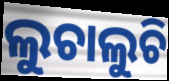
ଲୁଚାଲୁଚି